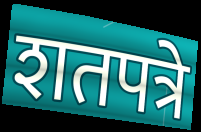
शतपत्रे